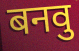
बनवु